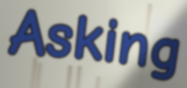
Asking